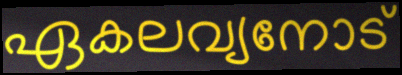
ഏകലവ്യനോട്